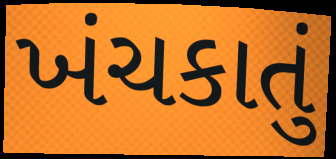
ખંચકાતું